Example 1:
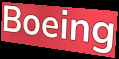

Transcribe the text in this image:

Boeing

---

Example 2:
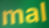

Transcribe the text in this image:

mal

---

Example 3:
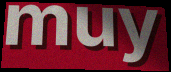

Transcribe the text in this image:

muy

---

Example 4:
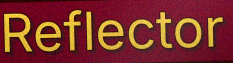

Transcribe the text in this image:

Reflector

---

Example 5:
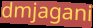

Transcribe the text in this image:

dmjagani